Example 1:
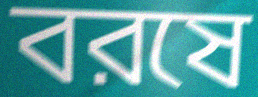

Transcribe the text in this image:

বরষে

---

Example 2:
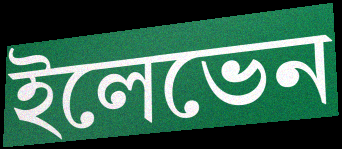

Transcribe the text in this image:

ইলেভেন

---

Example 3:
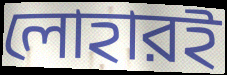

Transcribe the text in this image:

লোহারই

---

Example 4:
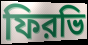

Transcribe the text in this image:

ফিরভি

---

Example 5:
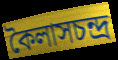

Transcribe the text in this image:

কৈলাসচন্দ্র